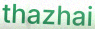
thazhai